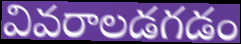
వివరాలడగడం